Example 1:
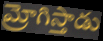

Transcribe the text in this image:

మ్రోగిస్తాడు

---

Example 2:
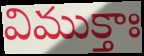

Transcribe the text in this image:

విముక్తాః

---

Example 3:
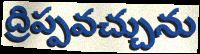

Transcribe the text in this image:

ద్రిప్పవచ్చును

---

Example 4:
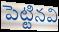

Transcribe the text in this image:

పెట్టినవి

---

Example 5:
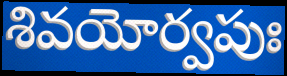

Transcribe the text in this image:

శివయోర్వపుః